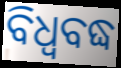
ବିଧ୍ଵବଦ୍ଧ